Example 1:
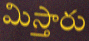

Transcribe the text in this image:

మిస్తారు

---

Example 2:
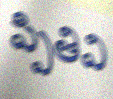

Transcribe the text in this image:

ప్పితివి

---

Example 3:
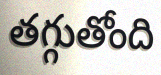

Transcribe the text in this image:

తగ్గుతోంది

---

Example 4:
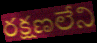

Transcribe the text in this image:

రక్షణలేని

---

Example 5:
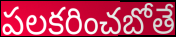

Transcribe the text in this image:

పలకరించబోతే